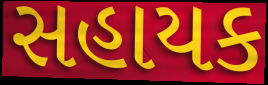
સહાયક